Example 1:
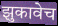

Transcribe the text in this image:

झुकावेच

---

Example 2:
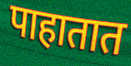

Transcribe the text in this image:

पाहातात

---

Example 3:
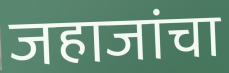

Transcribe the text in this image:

जहाजांचा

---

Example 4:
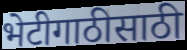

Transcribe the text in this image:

भेटीगाठीसाठी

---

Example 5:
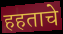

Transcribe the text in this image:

हहताचे